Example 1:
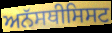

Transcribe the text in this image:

ਅਨੱਸਥੀਸਿਸਟ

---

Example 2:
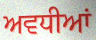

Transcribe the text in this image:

ਅਵਧੀਆਂ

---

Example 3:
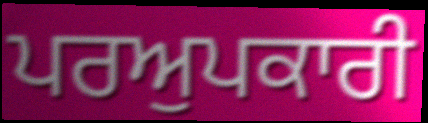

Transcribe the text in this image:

ਪਰਅੁਪਕਾਰੀ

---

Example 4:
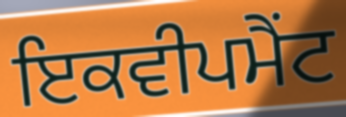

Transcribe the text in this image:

ਇਕਵੀਪਮੈਂਟ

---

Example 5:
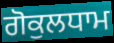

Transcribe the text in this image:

ਗੋਕੁਲਧਾਮ